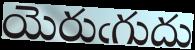
యెరుఁగుదు